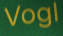
Vogl